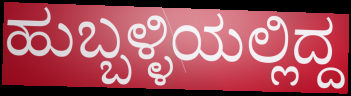
ಹುಬ್ಬಳ್ಳಿಯಲ್ಲಿದ್ದ